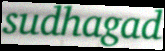
sudhagad